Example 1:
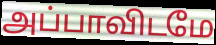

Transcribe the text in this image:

அப்பாவிடமே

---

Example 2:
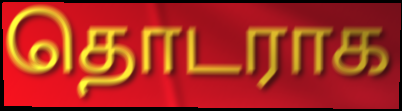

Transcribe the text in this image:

தொடராக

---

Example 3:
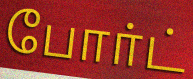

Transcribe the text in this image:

போர்ட்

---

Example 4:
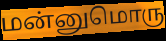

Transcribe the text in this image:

மன்னுமொரு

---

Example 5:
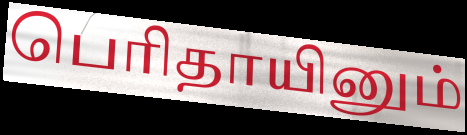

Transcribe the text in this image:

பெரிதாயினும்